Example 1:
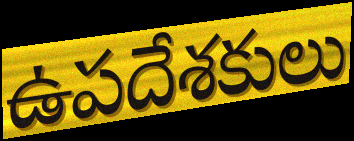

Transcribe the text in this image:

ఉపదేశకులు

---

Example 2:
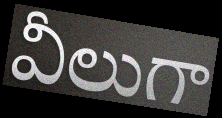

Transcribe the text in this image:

వీలుగా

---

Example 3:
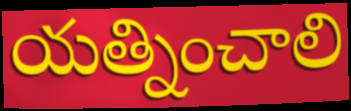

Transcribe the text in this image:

యత్నించాలి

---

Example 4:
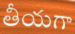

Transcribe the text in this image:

తీయగా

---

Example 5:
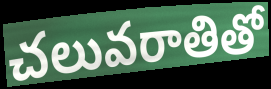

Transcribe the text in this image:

చలువరాతితో